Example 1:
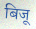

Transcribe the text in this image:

बिजू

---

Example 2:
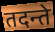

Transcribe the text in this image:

तदन्ते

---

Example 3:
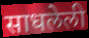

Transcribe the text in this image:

साधलेली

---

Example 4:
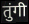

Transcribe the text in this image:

तुंगी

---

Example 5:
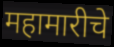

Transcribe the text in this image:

महामारीचे